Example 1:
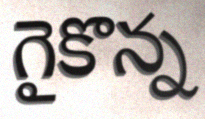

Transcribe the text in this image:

గైకొన్న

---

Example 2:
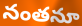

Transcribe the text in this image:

నంతనూ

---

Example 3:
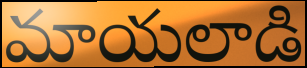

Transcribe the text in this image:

మాయలాడి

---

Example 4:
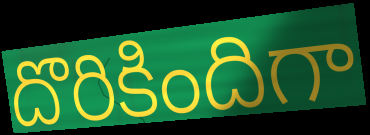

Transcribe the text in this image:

దొరికిందిగా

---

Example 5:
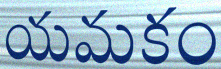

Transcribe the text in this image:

యమకం